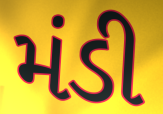
મંડી